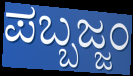
ಪಬ್ಬಜ್ಜಂ